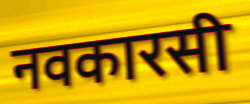
नवकारसी